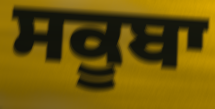
ਸਕੂਬਾ